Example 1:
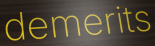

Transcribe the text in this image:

demerits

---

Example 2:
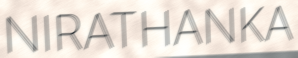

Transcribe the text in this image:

NIRATHANKA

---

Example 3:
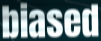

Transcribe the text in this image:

biased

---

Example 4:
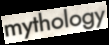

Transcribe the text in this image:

mythology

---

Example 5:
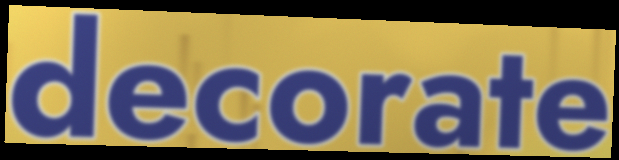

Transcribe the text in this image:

decorate